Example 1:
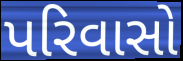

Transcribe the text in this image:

પરિવાસો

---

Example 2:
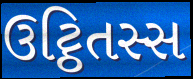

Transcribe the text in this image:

ઉટ્ઠિતસ્સ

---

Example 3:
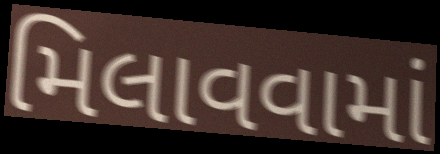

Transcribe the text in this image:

મિલાવવામાં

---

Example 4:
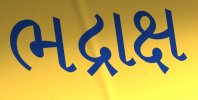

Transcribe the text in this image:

ભદ્રાક્ષ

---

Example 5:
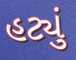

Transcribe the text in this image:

હટ્યું